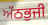
ਅੱਠਭੁਜੀ